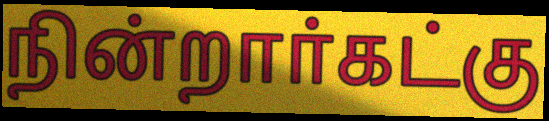
நின்றார்கட்கு